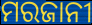
ମରଜାନୀ